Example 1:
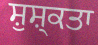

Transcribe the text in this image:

ਸ਼ੁਸ਼੍ਕਤਾ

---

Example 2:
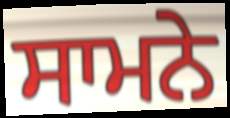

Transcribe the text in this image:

ਸਾਮਨੇ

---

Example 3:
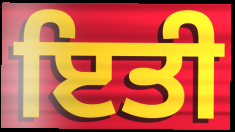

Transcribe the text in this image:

ਇਤੀ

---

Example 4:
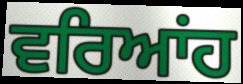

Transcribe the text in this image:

ਵਰਿਆਂਹ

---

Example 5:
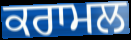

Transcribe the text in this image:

ਕਰਾਮਲ